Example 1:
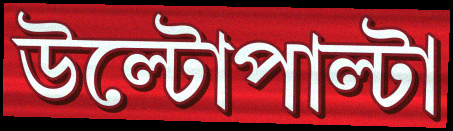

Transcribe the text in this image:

উল্টোপাল্টা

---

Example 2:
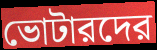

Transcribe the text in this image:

ভোটারদের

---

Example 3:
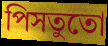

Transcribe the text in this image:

পিসতুতো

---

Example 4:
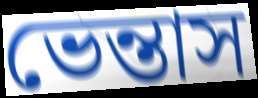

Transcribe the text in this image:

ভেন্তাস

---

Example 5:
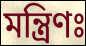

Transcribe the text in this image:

মন্ত্রিণঃ